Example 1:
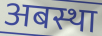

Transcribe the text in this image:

अबस्था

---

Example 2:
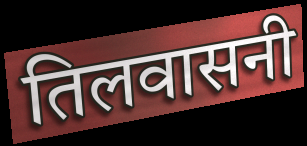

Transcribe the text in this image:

तिलवासनी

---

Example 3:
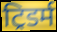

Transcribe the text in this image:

ट्रिडर्म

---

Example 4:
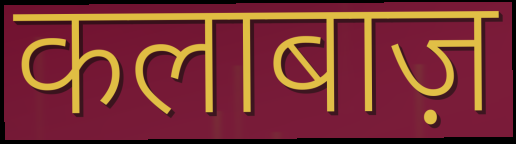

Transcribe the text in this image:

कलाबाज़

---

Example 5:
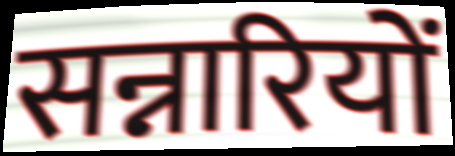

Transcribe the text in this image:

सन्नारियों